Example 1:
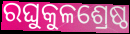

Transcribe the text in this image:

ରଘୁକୁଳଶ୍ରେଷ୍ଠ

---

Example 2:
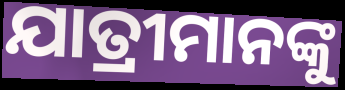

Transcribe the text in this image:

ଯାତ୍ରୀମାନଙ୍କୁ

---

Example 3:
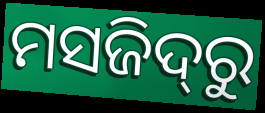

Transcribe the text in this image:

ମସଜିଦ୍‌ରୁ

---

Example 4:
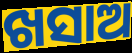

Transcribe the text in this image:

ଖସାଅ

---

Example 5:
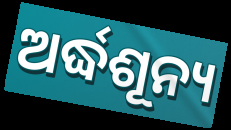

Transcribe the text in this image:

ଅର୍ଦ୍ଧଶୂନ୍ୟ